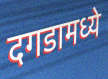
दगडामध्ये